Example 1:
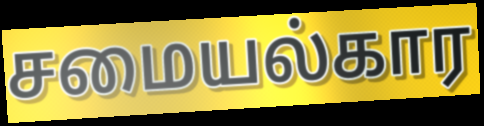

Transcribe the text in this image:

சமையல்கார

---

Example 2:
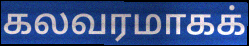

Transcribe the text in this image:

கலவரமாகக்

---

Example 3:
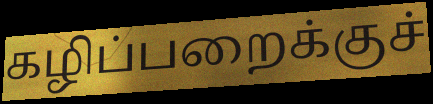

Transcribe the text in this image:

கழிப்பறைக்குச்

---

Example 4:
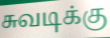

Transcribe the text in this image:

சுவடிக்கு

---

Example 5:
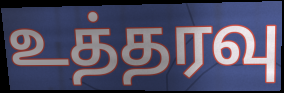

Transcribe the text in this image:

உத்தரவு